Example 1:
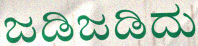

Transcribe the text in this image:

ಜಡಿಜಡಿದು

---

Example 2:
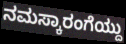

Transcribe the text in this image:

ನಮಸ್ಕಾರಂಗೆಯ್ದು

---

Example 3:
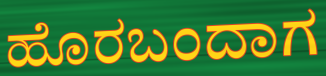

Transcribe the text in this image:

ಹೊರಬಂದಾಗ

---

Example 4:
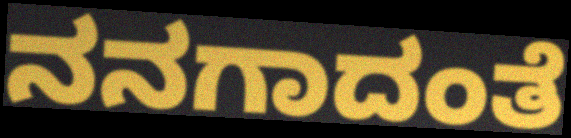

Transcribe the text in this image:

ನನಗಾದಂತೆ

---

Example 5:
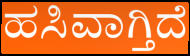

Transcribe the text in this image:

ಹಸಿವಾಗ್ತಿದೆ